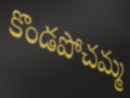
కొండపోచమ్మ